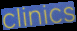
clinics